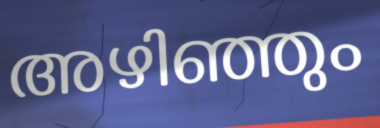
അഴിഞ്ഞും